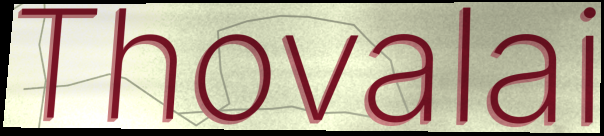
Thovalai